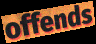
offends